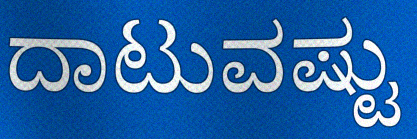
ದಾಟುವಷ್ಟು